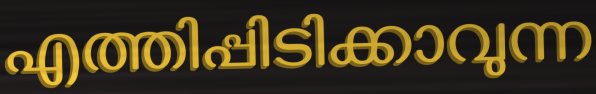
എത്തിപ്പിടിക്കാവുന്ന